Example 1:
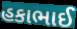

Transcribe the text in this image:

હકાભાઈ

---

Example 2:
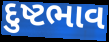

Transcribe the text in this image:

દુષ્ટભાવ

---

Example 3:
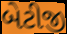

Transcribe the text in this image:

બેટીજી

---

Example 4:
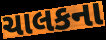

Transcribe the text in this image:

ચાલકના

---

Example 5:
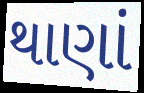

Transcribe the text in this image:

થાણાં